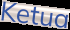
Ketua